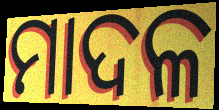
ମାଦଳ